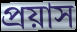
প্ৰয়াস